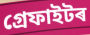
গ্ৰেফাইটৰ